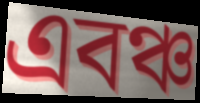
এবঞ্চ